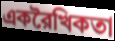
একরৈখিকতা